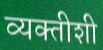
व्यक्‍तीशी